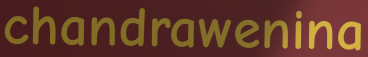
chandrawenina